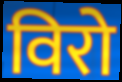
विरो